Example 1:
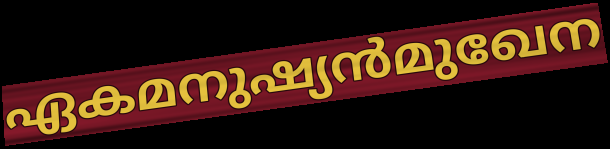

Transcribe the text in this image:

ഏകമനുഷ്യൻമുഖേന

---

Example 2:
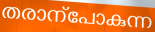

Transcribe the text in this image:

തരാന്പോകുന്ന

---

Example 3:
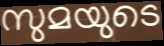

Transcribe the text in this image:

സുമയുടെ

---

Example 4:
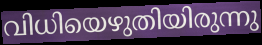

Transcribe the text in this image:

വിധിയെഴുതിയിരുന്നു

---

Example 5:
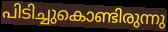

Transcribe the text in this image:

പിടിച്ചുകൊണ്ടിരുന്നു